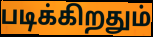
படிக்கிறதும்